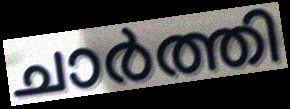
ചാർത്തി